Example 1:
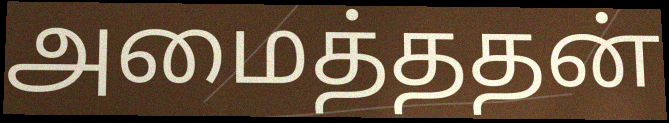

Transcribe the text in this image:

அமைத்ததன்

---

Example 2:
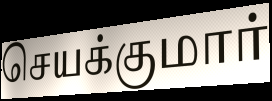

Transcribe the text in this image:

செயக்குமார்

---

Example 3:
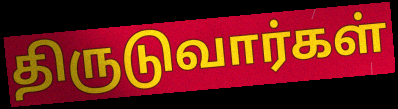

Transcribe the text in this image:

திருடுவார்கள்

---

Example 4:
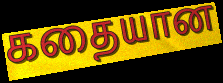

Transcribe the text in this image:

கதையான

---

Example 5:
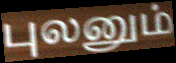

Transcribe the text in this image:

புலனும்